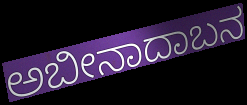
ಅಬೀನಾದಾಬನ